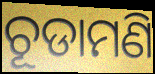
ଚୂଡାମଣି